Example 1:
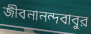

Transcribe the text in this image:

জীবনানন্দবাবুর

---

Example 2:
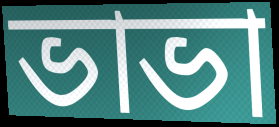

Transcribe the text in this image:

ভাভা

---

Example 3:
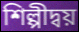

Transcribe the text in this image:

শিল্পীদ্বয়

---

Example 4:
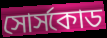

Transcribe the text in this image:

সোর্সকোড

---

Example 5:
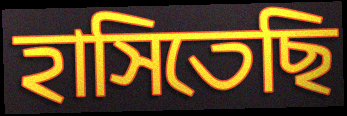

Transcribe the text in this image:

হাসিতেছি